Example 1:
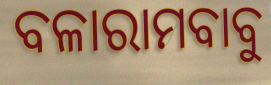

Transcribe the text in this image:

ବଳାରାମବାବୁ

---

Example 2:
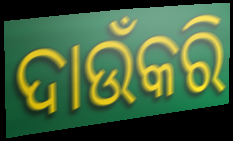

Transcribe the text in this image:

ଦାଉଁକରି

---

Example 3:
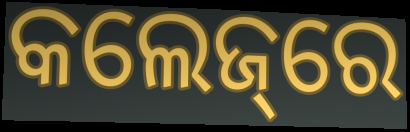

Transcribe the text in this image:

କଲେଜ୍‌ରେ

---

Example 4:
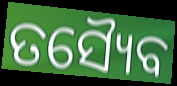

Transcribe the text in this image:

ତସ୍ୟୈବ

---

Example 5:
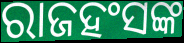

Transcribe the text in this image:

ରାଜହଂସଙ୍କ